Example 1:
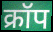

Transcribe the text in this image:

क्रॉप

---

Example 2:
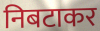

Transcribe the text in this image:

निबटाकर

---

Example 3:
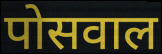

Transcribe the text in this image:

पोसवाल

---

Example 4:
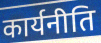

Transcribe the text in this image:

कार्यनीति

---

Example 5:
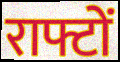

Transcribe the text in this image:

राफ्टों